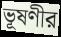
ভূষণীর